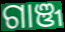
ଗାଞ୍ଜ